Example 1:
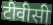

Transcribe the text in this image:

टीवीसी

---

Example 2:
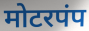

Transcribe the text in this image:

मोटरपंप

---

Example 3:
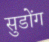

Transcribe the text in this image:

सुडोंग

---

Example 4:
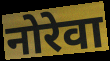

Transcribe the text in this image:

नोरेवा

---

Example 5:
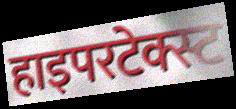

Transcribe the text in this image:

हाइपरटेक्स्ट